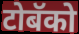
टोबॅको